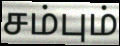
சம்பும்